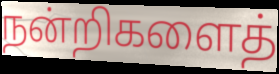
நன்றிகளைத்